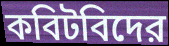
কবিটবিদের